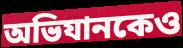
অভিযানকেও